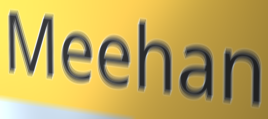
Meehan